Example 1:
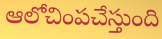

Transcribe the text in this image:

ఆలోచింపచేస్తుంది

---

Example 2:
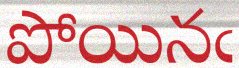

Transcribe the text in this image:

పోయినఁ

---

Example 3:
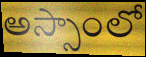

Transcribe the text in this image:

అస్సాంలో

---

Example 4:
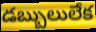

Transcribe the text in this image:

డబ్బులులేక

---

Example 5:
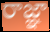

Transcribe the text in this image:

రాజ్ఞా